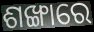
ଶଙ୍ଖାରେ